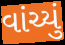
વાંચ્યું